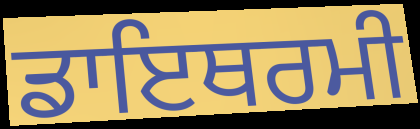
ਡਾਇਥਰਮੀ